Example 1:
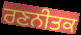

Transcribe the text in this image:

ਰਣਨੀਤਕ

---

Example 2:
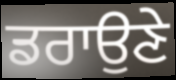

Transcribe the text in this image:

ਡਰਾਉਣੇ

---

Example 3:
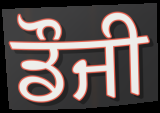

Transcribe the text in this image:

ਡੌਜੀ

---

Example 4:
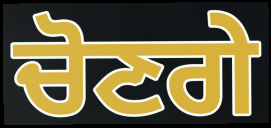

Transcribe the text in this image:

ਚੋਣਗੇ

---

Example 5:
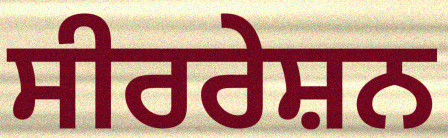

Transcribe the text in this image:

ਸੀਰਰੇਸ਼ਨ